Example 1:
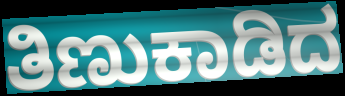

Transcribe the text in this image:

ತಿಣುಕಾಡಿದ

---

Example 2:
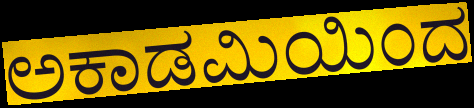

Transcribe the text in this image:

ಅಕಾಡಮಿಯಿಂದ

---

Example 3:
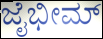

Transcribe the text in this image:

ಜೈಭೀಮ್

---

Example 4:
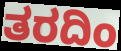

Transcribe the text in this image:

ತರದಿಂ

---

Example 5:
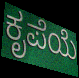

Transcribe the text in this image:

ಕೃಪೆಯೆ